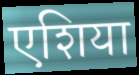
एशिया